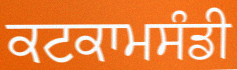
ਕਟਕਾਮਸੰਡੀ